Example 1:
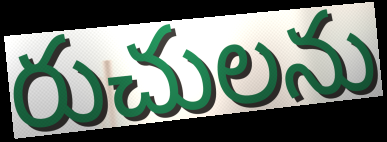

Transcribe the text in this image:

రుచులను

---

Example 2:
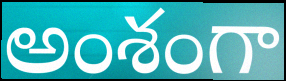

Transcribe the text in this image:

అంశంగా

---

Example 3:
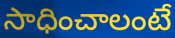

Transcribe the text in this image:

సాధించాలంటే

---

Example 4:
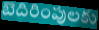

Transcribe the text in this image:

బెదిరింపులకు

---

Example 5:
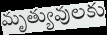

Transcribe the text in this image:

మృత్యువులకు